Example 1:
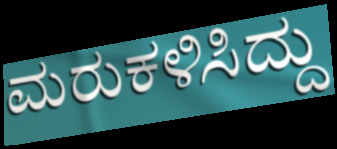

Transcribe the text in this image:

ಮರುಕಳಿಸಿದ್ದು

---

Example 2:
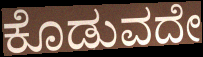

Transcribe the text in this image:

ಕೊಡುವದೇ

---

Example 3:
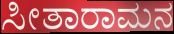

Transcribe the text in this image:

ಸೀತಾರಾಮನ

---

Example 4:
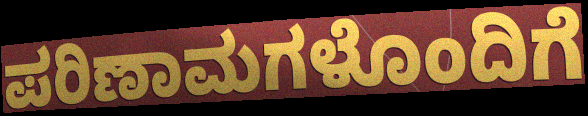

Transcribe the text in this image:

ಪರಿಣಾಮಗಳೊಂದಿಗೆ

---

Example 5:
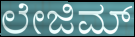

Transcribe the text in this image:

ಲೇಜಿಮ್